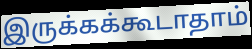
இருக்கக்கூடாதாம்